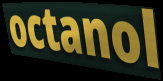
octanol